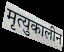
मृत्युकालीन